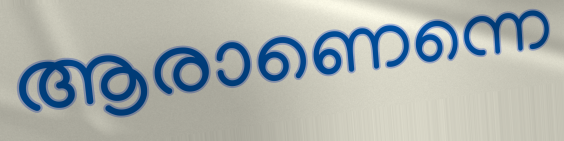
ആരാണെന്നെ